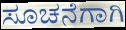
ಸೂಚನೆಗಾಗಿ